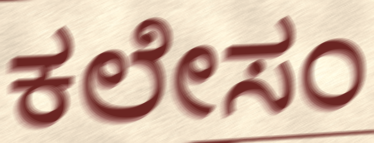
ಕಲೇಸಂ